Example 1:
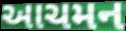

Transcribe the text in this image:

આચમન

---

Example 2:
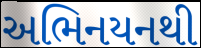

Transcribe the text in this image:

અભિનયનથી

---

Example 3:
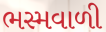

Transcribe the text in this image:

ભસ્મવાળી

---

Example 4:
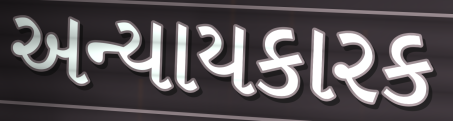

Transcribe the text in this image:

અન્યાયકારક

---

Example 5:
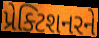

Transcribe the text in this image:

પ્રેક્ટિશનરને